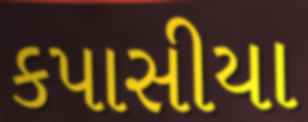
કપાસીયા